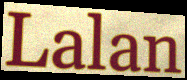
Lalan